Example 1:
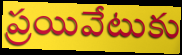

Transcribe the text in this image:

ప్రయివేటుకు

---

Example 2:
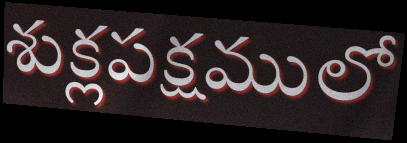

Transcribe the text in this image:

శుక్లపక్షములో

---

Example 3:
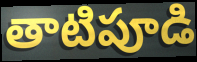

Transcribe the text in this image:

తాటిపూడి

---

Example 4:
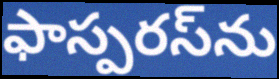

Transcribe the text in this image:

ఫాస్పరస్‌ను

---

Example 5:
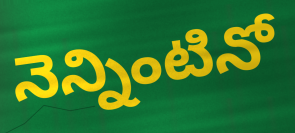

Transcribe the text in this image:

నెన్నింటినో